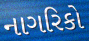
નાગરિકો